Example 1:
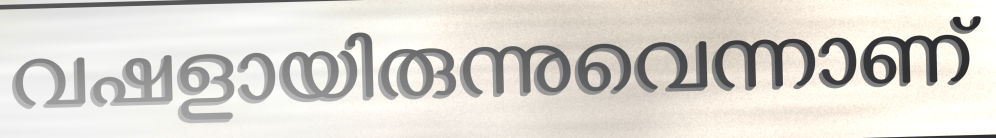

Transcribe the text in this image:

വഷളായിരുന്നുവെന്നാണ്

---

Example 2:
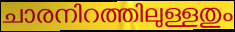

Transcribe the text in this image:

ചാരനിറത്തിലുള്ളതും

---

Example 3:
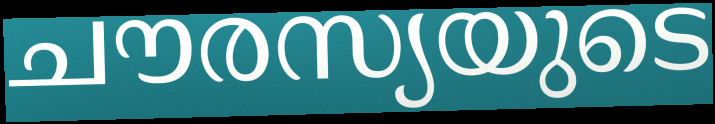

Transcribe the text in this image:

ചൗരസ്യയുടെ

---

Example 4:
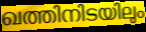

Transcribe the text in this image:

ഖത്തിനിടയിലും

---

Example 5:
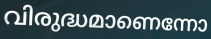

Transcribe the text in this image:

വിരുദ്ധമാണെന്നോ